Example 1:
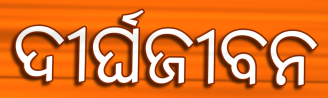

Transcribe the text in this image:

ଦୀର୍ଘଜୀବନ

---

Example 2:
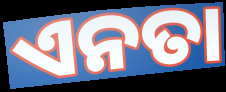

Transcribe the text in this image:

ଏନତା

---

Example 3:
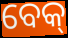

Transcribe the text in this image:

ବେକ୍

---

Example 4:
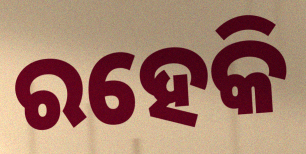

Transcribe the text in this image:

ରହେକି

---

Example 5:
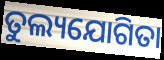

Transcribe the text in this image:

ତୁଲ୍ୟଯୋଗିତା